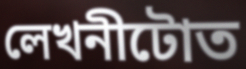
লেখনীটোত